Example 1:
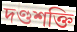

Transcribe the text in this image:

দণ্ডশক্তি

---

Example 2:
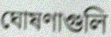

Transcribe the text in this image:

ঘোষণাগুলি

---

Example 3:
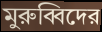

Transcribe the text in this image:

মুরুব্বিদের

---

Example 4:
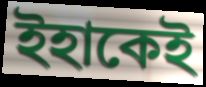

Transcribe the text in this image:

ইহাকেই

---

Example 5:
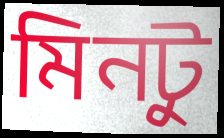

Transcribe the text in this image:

মিনটু